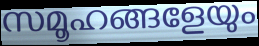
സമൂഹങ്ങളേയും